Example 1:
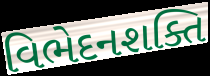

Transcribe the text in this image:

વિભેદનશક્તિ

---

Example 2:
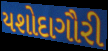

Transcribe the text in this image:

યશોદાગૌરી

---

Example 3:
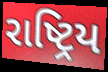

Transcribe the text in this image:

રાષ્ટ્રિય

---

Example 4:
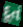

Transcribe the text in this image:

દૂતં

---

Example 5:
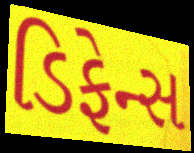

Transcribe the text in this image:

ડિફેન્સ